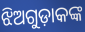
ଝିଅଗୁଡ଼ାକଙ୍କ